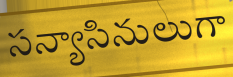
సన్యాసినులుగా